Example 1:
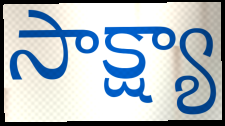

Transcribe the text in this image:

సాక్ష్యా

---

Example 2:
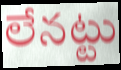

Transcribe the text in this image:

లేనట్టు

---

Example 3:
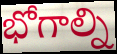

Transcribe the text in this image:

భోగాల్ని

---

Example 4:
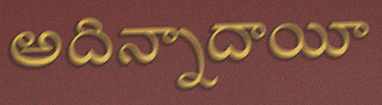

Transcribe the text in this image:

అదిన్నాదాయీ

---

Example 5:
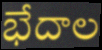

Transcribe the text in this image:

భేదాల